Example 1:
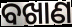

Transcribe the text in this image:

ବଖାଣ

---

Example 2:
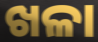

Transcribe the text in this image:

ଖଳା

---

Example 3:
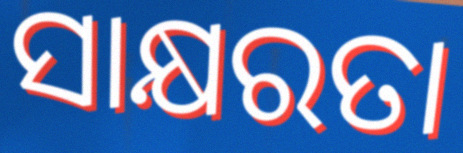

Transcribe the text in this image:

ସାକ୍ଷରତା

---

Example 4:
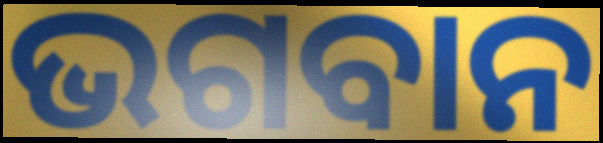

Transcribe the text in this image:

ଭଗବାନ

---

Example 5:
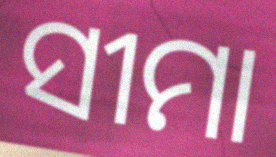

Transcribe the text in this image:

ସୀମା